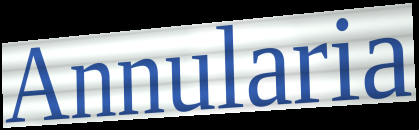
Annularia